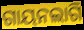
ଗାୟନଲାଗି